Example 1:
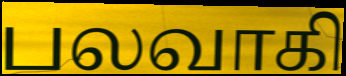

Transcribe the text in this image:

பலவாகி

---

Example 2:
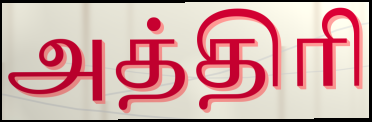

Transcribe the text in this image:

அத்திரி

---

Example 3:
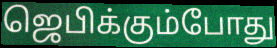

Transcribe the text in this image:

ஜெபிக்கும்போது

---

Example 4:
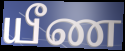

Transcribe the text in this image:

யீண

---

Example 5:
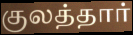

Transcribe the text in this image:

குலத்தார்